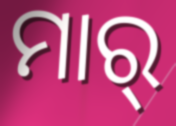
ମାର୍